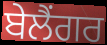
ਬੇਲੈਂਗਰ